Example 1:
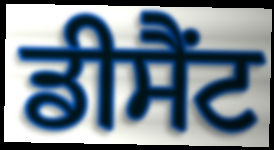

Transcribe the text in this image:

ਡੀਸੈਂਟ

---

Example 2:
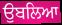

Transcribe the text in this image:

ਉਬਲਿਆ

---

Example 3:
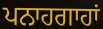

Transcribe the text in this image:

ਪਨਾਹਗਾਹਾਂ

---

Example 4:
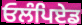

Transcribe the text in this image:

ਓਲੰਪਿਏਡ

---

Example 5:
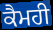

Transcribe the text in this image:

ਕੈਮਹੀ